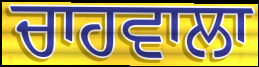
ਚਾਹਵਾਲਾ